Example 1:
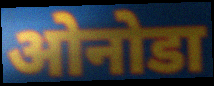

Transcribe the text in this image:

ओनोडा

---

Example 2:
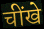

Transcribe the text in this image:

चींखे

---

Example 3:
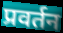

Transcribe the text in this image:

प्रवर्तन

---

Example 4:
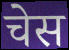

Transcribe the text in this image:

चेस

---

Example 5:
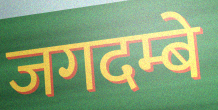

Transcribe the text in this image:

जगदम्बे